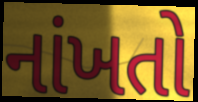
નાંખતો